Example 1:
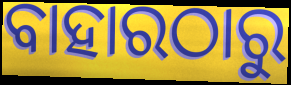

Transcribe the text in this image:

ବାହାରଠାରୁ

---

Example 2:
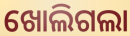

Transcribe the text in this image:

ଖୋଲିଗଲା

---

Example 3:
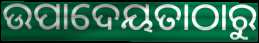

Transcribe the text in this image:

ଉପାଦେୟତାଠାରୁ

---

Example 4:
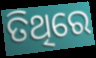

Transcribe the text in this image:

ତିଥିରେ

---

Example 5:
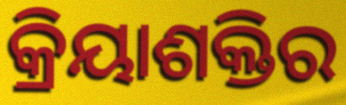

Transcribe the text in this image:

କ୍ରିୟାଶକ୍ତିର